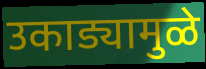
उकाड्यामुळे